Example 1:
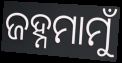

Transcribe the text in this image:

ଜହ୍ନମାମୁଁ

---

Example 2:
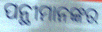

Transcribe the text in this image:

ପନ୍ଥୀମାନଙ୍କର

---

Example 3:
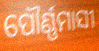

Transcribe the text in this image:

ପୌର୍ଣ୍ଣମାସୀ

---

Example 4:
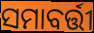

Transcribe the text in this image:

ସମାବର୍ତ୍ତୀ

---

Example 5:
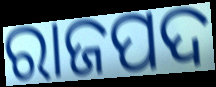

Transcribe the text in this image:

ରାଜପଦ